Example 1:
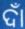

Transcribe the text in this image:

ଦାଁ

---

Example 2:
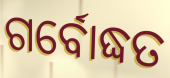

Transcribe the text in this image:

ଗର୍ବୋଦ୍ଧତ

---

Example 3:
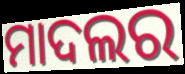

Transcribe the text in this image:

ମାଦଲର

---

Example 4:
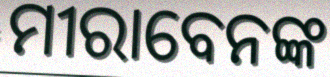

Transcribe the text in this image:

ମୀରାବେନଙ୍କ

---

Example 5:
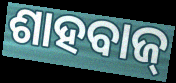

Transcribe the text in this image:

ଶାହବାଜ୍